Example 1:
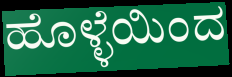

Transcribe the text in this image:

ಹೊಳ್ಳೆಯಿಂದ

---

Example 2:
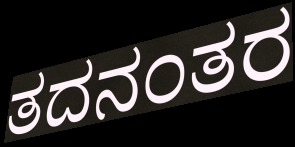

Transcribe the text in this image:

ತದನಂತರ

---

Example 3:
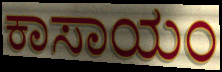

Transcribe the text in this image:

ಕಾಸಾಯಂ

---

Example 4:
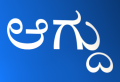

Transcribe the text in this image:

ಆಗ್ದು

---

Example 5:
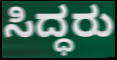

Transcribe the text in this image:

ಸಿದ್ಧರು